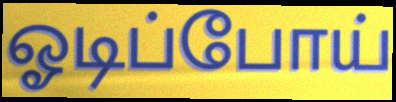
ஓடிப்போய்